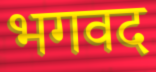
भगवद